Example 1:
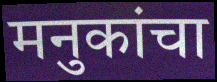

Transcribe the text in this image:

मनुकांचा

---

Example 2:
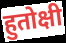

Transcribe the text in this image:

हुतोक्षी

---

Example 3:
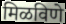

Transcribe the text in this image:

मिळविणे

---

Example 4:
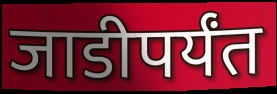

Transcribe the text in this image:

जाडीपर्यंत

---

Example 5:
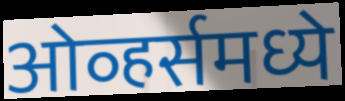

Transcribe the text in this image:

ओव्हर्समध्ये